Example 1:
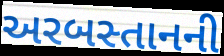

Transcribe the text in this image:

અરબસ્તાનની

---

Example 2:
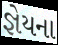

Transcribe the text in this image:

જ્ઞેયના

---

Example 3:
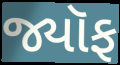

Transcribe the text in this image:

જ્યૉફ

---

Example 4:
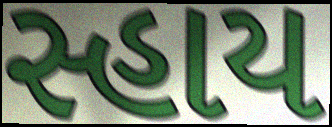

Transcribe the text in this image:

સ્હાય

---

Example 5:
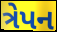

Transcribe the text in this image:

ત્રેપન